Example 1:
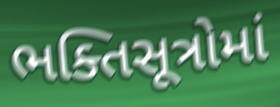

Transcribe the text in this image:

ભક્તિસૂત્રોમાં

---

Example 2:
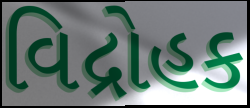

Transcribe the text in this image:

વિદ્રોહક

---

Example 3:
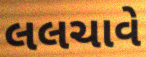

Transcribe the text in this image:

લલચાવે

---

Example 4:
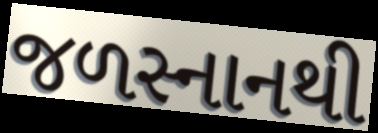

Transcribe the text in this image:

જળસ્નાનથી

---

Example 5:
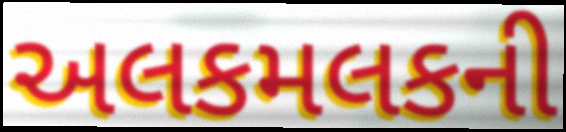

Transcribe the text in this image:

અલકમલકની